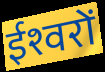
ईश्वरों